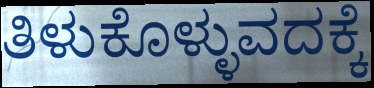
ತಿಳುಕೊಳ್ಳುವದಕ್ಕೆ